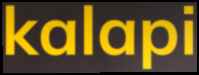
kalapi